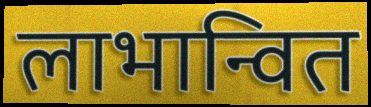
लाभान्वित